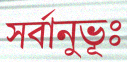
সর্বানুভূঃ